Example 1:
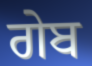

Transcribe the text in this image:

ਗੇਬ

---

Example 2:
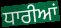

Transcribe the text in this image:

ਧਾਰੀਆਂ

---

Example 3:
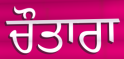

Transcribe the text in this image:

ਚੌਤਾਰਾ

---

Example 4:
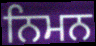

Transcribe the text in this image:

ਨਿਮਨ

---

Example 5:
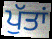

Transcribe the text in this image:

ਪੁੱਤਾਂ